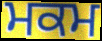
ਮਕਮ